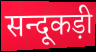
सन्दूकड़ी